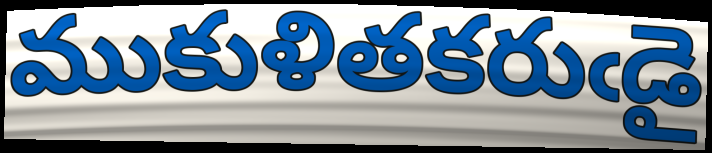
ముకుళితకరుఁడై